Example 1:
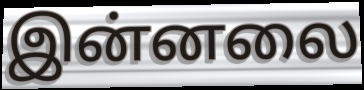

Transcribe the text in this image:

இன்னலை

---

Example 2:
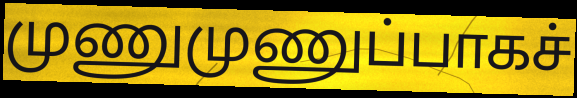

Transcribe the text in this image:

முணுமுணுப்பாகச்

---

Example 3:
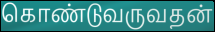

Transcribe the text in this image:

கொண்டுவருவதன்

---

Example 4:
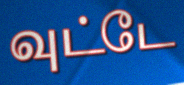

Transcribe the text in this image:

வுட்டே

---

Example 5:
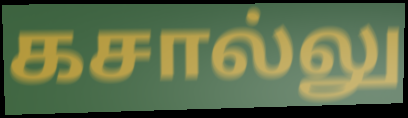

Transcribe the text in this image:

கசால்லு